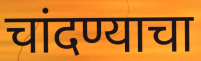
चांदण्याचा